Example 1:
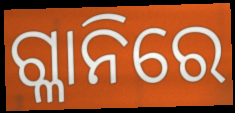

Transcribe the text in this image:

ଗ୍ଳାନିରେ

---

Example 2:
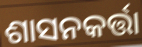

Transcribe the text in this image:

ଶାସନକର୍ତ୍ତା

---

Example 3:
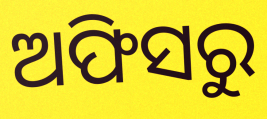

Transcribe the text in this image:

ଅଫିସରୁ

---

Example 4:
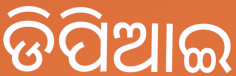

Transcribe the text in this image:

ଡିପିଆଇ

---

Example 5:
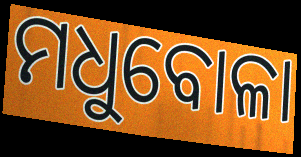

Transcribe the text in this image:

ମଧୁବୋଳା